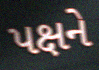
પક્ષને